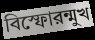
বিস্ফোরন্মুখ